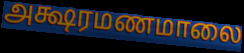
அக்ஷரமணமாலை